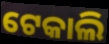
ଟେକାଲି